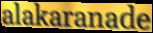
alakaranade